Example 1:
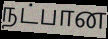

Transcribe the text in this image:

நட்பான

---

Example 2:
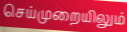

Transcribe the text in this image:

செய்முறையிலும்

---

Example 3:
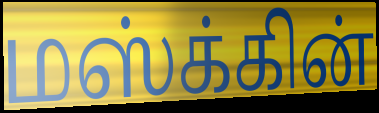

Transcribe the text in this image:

மஸ்க்கின்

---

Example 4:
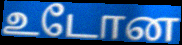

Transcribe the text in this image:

உடோன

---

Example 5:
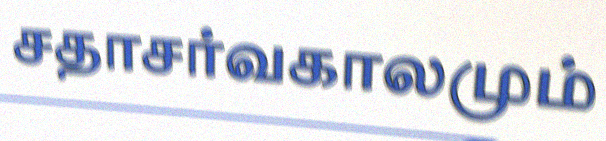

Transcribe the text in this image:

சதாசர்வகாலமும்